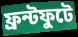
ফ্রন্টফুটে